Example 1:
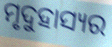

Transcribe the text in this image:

ମୃଦୁହାସ୍ୟର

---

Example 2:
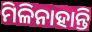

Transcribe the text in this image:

ମିଳିନାହାନ୍ତି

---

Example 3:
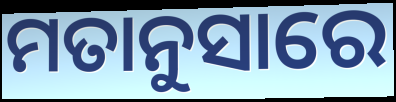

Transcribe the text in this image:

ମତାନୁସାରେ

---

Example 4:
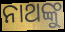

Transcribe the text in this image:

ନାଥଙ୍କୁ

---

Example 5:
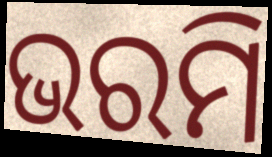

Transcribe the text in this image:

ଭରମି